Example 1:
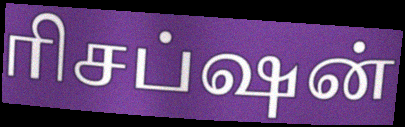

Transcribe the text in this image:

ரிசப்ஷன்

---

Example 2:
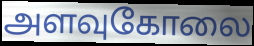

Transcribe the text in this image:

அளவுகோலை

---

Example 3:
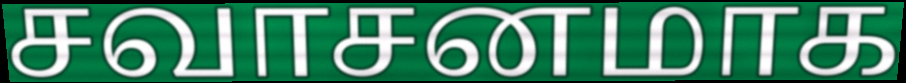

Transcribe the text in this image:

சவாசனமாக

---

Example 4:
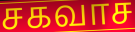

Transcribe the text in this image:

சகவாச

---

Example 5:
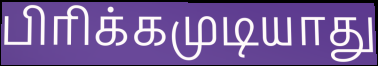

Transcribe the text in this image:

பிரிக்கமுடியாது